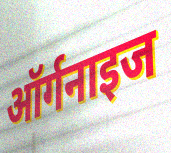
ऑर्गनाइज